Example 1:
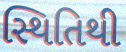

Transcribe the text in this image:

સ્થિતિથી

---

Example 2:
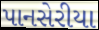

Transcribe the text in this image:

પાનસેરીયા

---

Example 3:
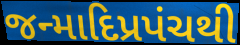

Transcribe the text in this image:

જન્માદિપ્રપંચથી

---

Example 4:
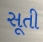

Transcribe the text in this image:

સૂતી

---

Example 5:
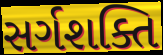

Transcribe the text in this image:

સર્ગશક્તિ